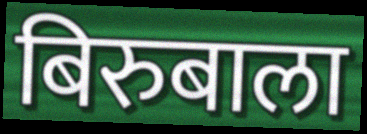
बिरुबाला